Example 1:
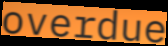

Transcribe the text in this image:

overdue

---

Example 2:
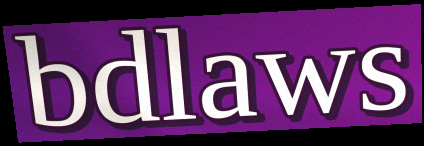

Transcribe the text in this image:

bdlaws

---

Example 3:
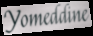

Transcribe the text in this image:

Yomeddine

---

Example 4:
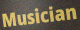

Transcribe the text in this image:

Musician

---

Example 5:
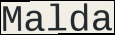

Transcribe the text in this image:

Malda